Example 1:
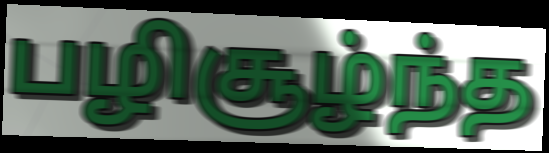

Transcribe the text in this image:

பழிசூழ்ந்த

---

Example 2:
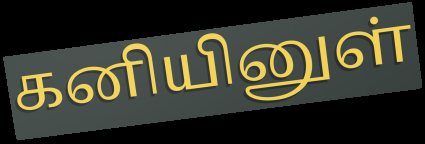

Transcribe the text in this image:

கனியினுள்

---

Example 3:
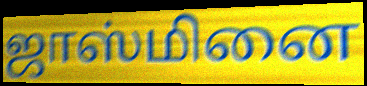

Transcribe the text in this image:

ஜாஸ்மினை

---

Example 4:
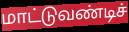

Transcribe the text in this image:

மாட்டுவண்டிச்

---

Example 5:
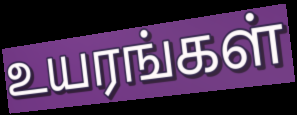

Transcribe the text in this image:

உயரங்கள்